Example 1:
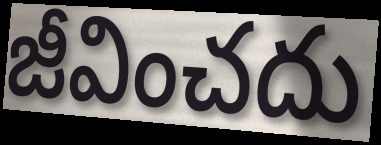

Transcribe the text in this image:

జీవించదు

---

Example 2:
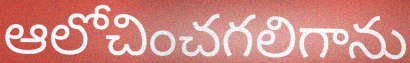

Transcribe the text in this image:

ఆలోచించగలిగాను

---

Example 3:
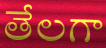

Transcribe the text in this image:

తేలగా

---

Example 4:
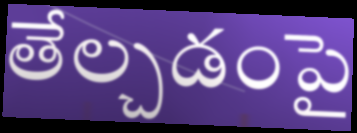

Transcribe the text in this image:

తేల్చడంపై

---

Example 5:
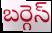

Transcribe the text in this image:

బర్గెస్